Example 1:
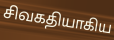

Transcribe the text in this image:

சிவகதியாகிய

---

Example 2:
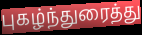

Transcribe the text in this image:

புகழ்ந்துரைத்து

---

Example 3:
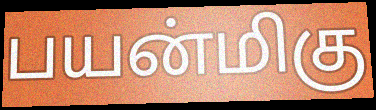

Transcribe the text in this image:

பயன்மிகு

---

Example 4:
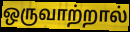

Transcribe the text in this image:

ஒருவாற்றால்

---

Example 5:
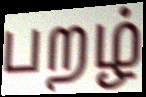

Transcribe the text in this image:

பறழ்